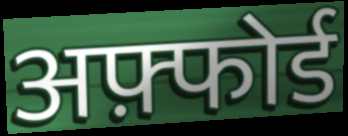
अफ़्फोर्ड